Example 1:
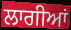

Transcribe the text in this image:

ਲਾਗੀਆਂ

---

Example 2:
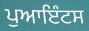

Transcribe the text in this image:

ਪੁਆਇੰਟਸ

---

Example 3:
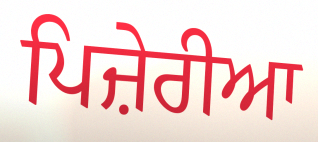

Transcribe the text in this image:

ਪਿਜ਼ੇਰੀਆ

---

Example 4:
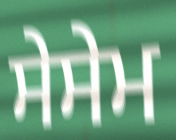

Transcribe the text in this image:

ਸੇਸੇਮ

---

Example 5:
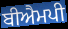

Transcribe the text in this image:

ਬੀਐਮਪੀ